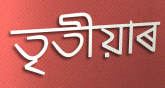
তৃতীয়াৰ